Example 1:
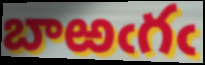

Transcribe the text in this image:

బాఱఁగఁ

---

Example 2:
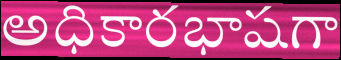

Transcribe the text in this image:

అధికారభాషగా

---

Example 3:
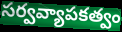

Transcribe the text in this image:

సర్వవ్యాపకత్వం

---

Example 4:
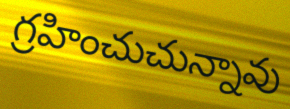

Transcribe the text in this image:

గ్రహించుచున్నావు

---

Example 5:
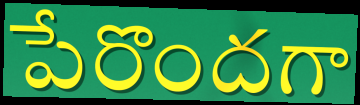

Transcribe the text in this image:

పేరొందగా